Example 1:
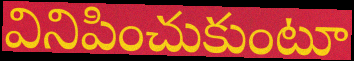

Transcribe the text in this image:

వినిపించుకుంటూ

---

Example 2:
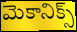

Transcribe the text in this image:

మెకానిక్స్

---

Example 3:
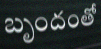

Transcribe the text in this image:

బృందంతో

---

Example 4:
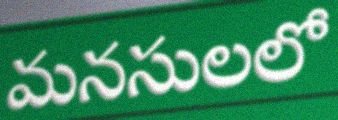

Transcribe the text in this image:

మనసులలో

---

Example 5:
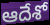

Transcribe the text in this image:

ఆదేశో